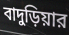
বাদুড়িয়ার